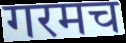
गरमच